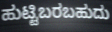
ಹುಟ್ಟಿಬರಬಹುದು